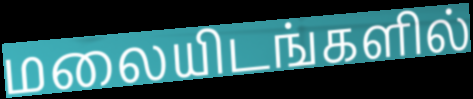
மலையிடங்களில்